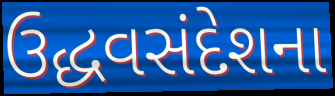
ઉદ્ધવસંદેશના